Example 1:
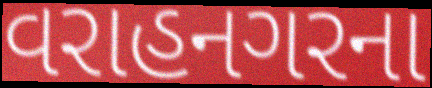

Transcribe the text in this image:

વરાહનગરના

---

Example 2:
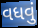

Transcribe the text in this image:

વધવું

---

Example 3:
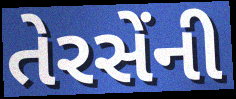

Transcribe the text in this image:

તેરસેંની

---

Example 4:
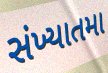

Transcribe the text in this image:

સંખ્યાતમા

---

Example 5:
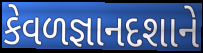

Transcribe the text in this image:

કેવળજ્ઞાનદશાને